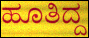
ಹೂತಿದ್ದ